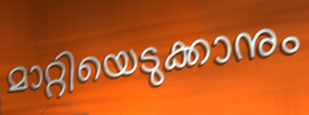
മാറ്റിയെടുക്കാനും